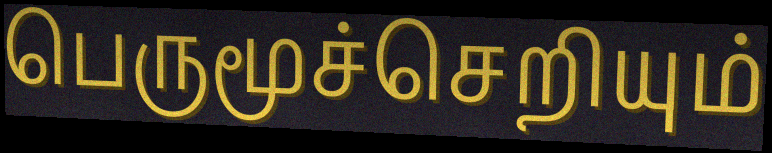
பெருமூச்செறியும்